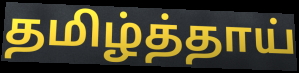
தமிழ்த்தாய்